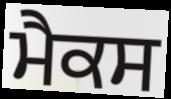
ਮੈਕਸ